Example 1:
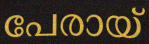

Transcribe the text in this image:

പേരായ്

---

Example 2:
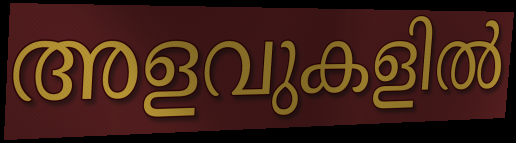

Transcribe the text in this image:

അളവുകളിൽ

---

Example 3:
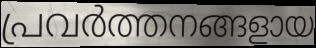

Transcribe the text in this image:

പ്രവർത്തനങ്ങളായ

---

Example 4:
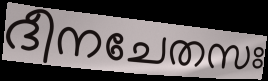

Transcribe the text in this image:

ദീനചേതസഃ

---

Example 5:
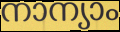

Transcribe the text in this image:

നാന്യാം